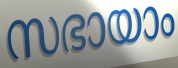
സഭായാം